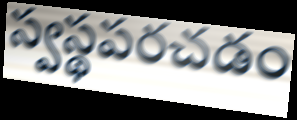
స్వస్థపరచడం